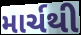
માર્ચથી